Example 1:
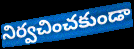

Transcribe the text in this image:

నిర్వచించకుండా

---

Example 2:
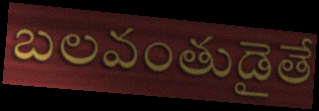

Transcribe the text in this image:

బలవంతుడైతే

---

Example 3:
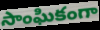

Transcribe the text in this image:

సాంఘికంగా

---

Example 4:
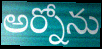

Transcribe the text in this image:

అర్నోను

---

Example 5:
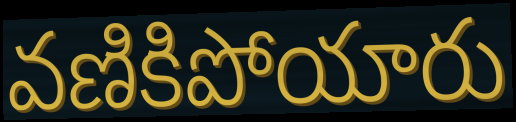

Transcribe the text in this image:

వణికిపోయారు